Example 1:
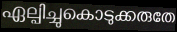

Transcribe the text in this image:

ഏല്പിച്ചുകൊടുക്കരുതേ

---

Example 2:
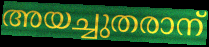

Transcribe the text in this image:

അയച്ചുതരാന്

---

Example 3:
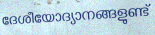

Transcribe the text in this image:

ദേശീയോദ്യാനങ്ങളുണ്ട്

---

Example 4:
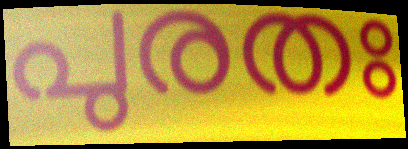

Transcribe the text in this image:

പുരതഃ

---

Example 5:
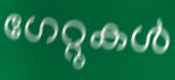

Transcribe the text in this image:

ഗേറ്റുകൾ